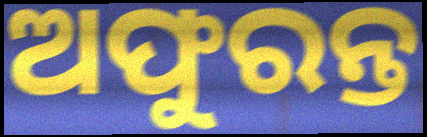
ଅଫୁରନ୍ତ